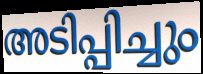
അടിപ്പിച്ചും